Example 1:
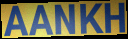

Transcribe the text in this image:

AANKH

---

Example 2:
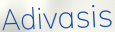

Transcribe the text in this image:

Adivasis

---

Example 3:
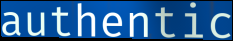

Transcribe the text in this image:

authentic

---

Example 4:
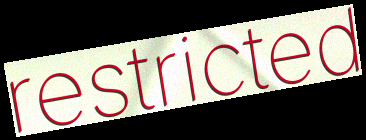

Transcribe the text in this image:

restricted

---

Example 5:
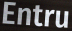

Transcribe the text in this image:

Entru